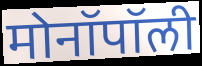
मोनॉपॉली